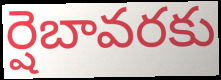
ర్షెబావరకు